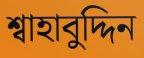
শ্বাহাবুদ্দিন